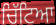
ਚਿੱਟਿਆ